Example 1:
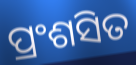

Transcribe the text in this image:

ପ୍ରଂଶସିତ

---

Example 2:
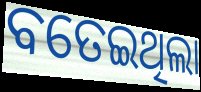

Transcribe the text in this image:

ବତେଇଥିଲା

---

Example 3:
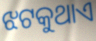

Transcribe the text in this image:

ଝଟକୁଥାଏ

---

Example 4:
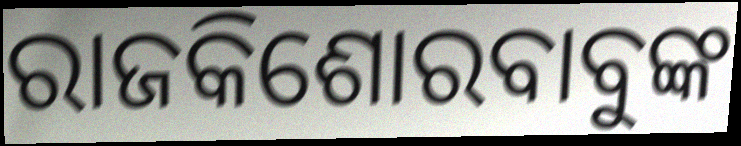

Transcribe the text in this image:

ରାଜକିଶୋରବାବୁଙ୍କ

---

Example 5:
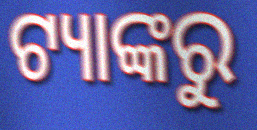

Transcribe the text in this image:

ଟ୍ୟାଙ୍କରୁ